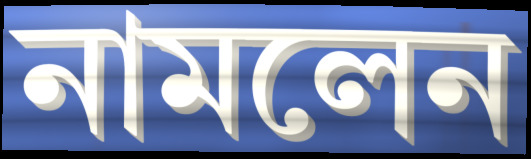
নামলেন